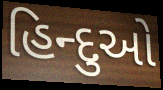
હિન્દુઓ